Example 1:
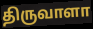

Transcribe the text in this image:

திருவாளா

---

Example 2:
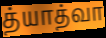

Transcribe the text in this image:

த்யாத்வா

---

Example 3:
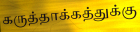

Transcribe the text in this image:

கருத்தாக்கத்துக்கு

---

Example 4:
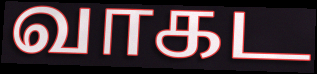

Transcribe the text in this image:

வாகட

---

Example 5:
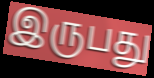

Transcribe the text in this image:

இருபது